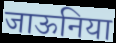
जाऊनिया